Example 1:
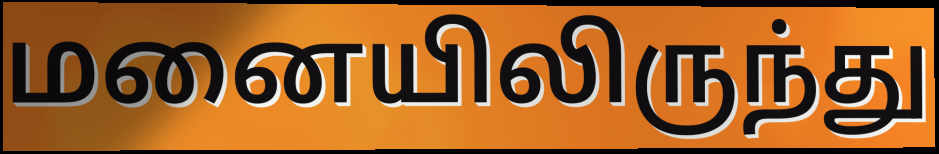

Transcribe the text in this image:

மனையிலிருந்து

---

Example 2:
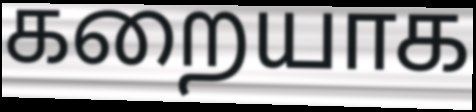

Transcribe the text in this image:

கறையாக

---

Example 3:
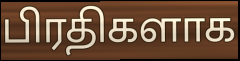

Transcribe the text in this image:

பிரதிகளாக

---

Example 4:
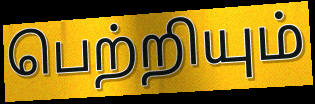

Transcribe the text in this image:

பெற்றியும்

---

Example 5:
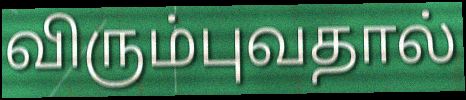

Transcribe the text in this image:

விரும்புவதால்